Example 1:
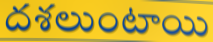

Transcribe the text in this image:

దశలుంటాయి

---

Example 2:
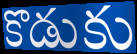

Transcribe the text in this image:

కొడుకు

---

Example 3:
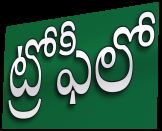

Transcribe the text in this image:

ట్రోఫీలో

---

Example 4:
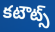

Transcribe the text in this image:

కటౌట్స్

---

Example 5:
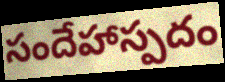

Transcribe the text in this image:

సందేహాస్పదం